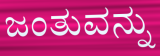
ಜಂತುವನ್ನು